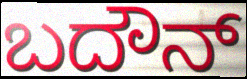
ಬದೌನ್